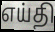
எய்தி